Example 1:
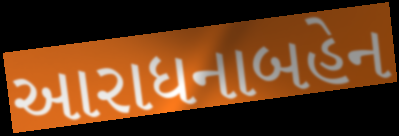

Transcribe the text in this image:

આરાધનાબહેન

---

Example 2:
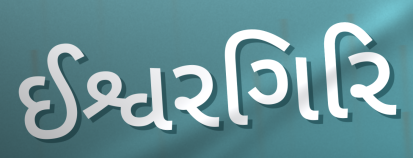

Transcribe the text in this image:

ઈશ્વરગિરિ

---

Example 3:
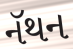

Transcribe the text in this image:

નૅથન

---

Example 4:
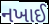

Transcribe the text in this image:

નખાઈ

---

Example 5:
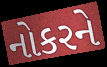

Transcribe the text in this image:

નોકરને